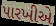
પારખીએ